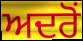
ਅਦਰੋਂ